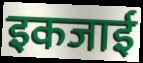
इकजाई